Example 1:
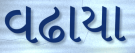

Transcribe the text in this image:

વઢાયા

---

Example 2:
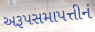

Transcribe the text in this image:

અરૂપસમાપત્તીનં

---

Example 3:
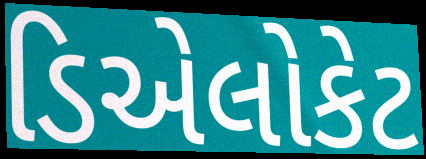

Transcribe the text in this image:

ડિએલોકેટ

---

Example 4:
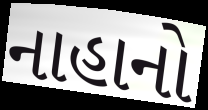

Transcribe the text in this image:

નાહાનો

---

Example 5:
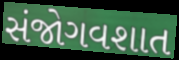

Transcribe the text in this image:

સંજોગવશાત